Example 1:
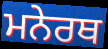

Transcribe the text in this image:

ਮਨੇਰਥ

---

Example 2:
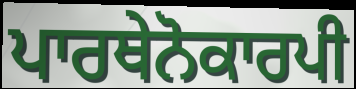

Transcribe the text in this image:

ਪਾਰਥੇਨੋਕਾਰਪੀ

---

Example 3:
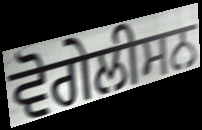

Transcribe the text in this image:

ਵੋਗੇਲੀਸਨ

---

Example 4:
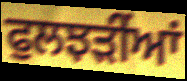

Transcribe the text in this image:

ਫੁਲਝੜੀਂਆਂ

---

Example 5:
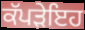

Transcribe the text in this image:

ਕੱਪੜੇਇਹ